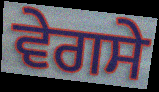
ਵੇਗਸੇ